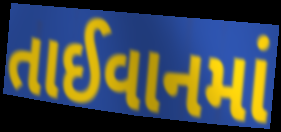
તાઈવાનમાં